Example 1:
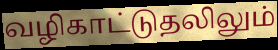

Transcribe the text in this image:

வழிகாட்டுதலிலும்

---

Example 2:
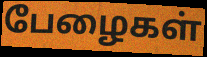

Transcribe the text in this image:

பேழைகள்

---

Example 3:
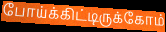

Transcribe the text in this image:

போய்க்கிட்டிருக்கோம்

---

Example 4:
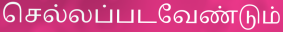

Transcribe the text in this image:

செல்லப்படவேண்டும்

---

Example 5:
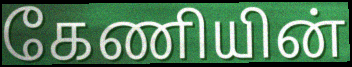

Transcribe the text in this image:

கேணியின்